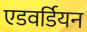
एडवर्डियन